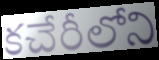
కచేరీలోని